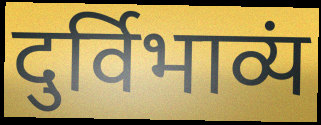
दुर्विभाव्यं